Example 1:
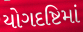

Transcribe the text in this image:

યોગદષ્ટિમાં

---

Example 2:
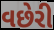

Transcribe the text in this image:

વછેરી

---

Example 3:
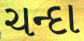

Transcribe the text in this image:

ચન્દા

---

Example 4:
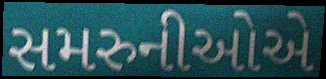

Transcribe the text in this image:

સમરુનીઓએ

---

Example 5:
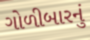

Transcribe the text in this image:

ગોળીબારનું